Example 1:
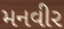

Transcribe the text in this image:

મનવીર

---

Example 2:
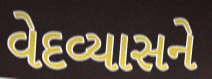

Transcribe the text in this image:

વેદવ્યાસને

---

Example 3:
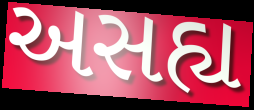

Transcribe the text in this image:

અસહ્ય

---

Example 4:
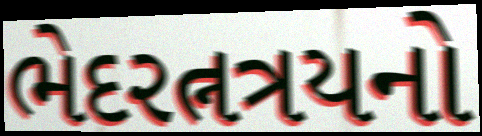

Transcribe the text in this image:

ભેદરત્નત્રયનો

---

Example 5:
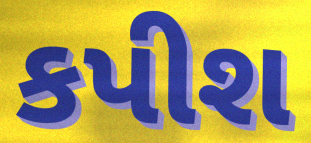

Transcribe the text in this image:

કપીશ